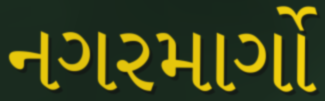
નગરમાર્ગો